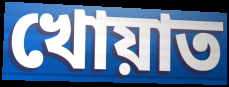
খোয়াত